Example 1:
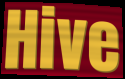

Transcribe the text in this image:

Hive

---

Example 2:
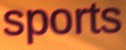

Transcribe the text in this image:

sports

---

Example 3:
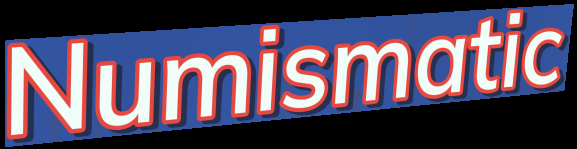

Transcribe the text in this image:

Numismatic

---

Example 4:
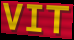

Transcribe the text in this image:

VIT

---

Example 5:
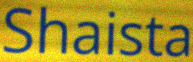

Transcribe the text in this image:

Shaista